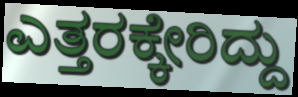
ಎತ್ತರಕ್ಕೇರಿದ್ದು